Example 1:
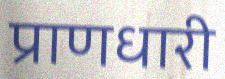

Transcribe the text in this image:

प्राणधारी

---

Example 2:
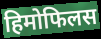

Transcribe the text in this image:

हिमोफिलस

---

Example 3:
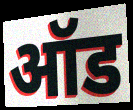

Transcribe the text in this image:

ऑड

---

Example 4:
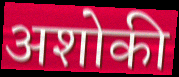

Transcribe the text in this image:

अशोकी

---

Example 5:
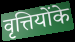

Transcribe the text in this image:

वृत्तियोंके